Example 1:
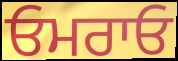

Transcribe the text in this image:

ਓਮਰਾਓ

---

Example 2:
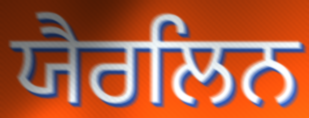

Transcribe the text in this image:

ਯੈਰਲਿਨ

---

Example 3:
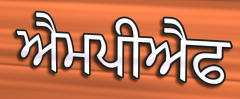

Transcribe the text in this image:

ਐਮਪੀਐਫ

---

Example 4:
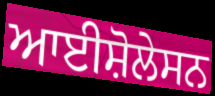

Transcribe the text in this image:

ਆਈਸ਼ੋਲੇਸਨ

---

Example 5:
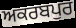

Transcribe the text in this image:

ਅਕਰਬਪੁਰ